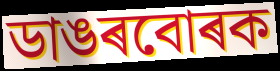
ডাঙৰবোৰক